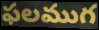
ఫలముగ